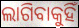
ଲାଗିବାକୁହିଁ